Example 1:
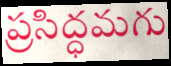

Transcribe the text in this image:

ప్రసిద్ధమగు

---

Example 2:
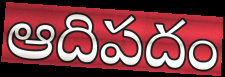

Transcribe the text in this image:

ఆదిపదం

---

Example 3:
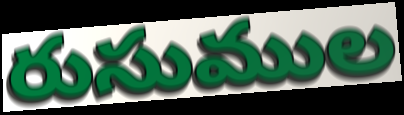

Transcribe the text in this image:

రుసుముల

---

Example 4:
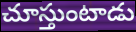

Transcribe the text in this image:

చూస్తుంటాడు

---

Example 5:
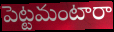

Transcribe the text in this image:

పెట్టమంటారా